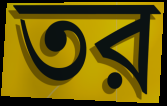
তর